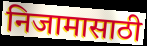
निजामासाठी